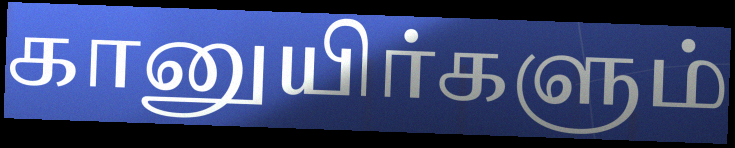
கானுயிர்களும்